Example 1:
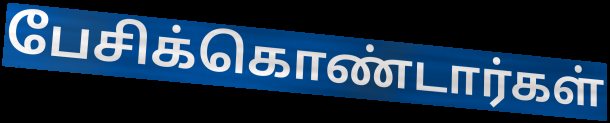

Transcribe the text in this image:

பேசிக்கொண்டார்கள்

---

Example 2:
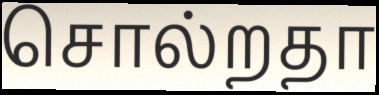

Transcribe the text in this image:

சொல்றதா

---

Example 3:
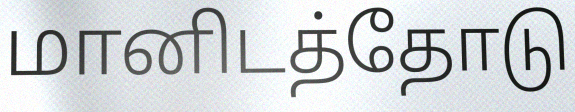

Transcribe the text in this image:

மானிடத்தோடு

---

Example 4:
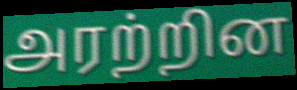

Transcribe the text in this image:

அரற்றின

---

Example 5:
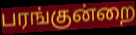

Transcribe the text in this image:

பரங்குன்றை